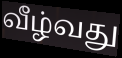
வீழ்வது